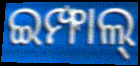
ଇମ୍ଫାଲ୍